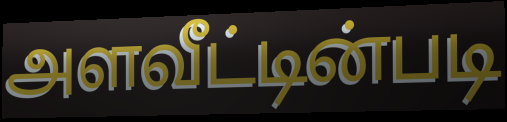
அளவீட்டின்படி